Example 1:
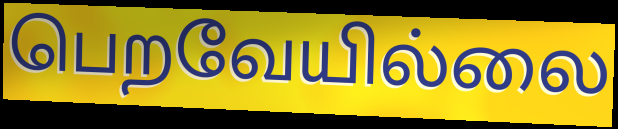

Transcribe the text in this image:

பெறவேயில்லை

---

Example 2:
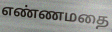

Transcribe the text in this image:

எண்ணமதை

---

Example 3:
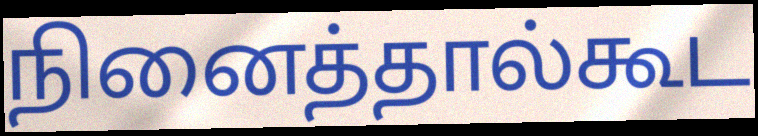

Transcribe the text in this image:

நினைத்தால்கூட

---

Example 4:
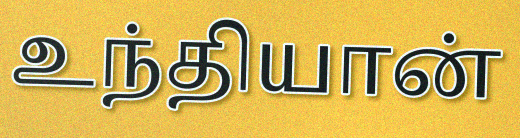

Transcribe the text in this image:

உந்தியான்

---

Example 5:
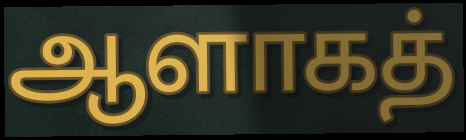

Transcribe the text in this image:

ஆளாகத்